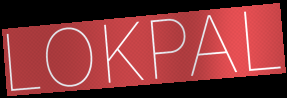
LOKPAL